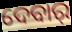
ଦେବାର୍